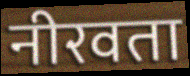
नीरवता